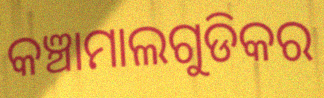
କଞ୍ଚାମାଲଗୁଡିକର